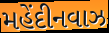
મહેંદીનવાઝ